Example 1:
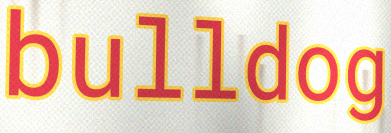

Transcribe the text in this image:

bulldog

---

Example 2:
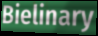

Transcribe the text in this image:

Bielinary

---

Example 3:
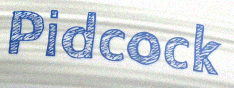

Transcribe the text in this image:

Pidcock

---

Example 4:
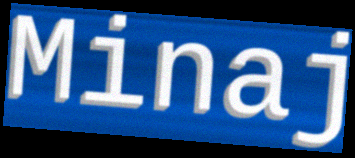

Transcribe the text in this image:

Minaj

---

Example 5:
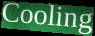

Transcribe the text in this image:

Cooling